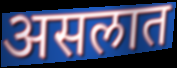
असलात